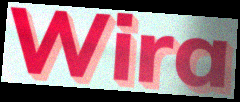
Wira